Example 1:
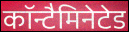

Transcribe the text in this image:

कॉन्टैमिनेटेड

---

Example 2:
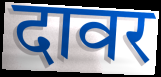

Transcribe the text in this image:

दावर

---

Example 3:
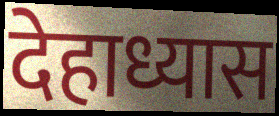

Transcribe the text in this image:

देहाध्यास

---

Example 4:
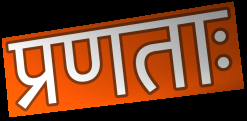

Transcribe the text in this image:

प्रणताः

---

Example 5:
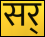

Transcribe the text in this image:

सर्